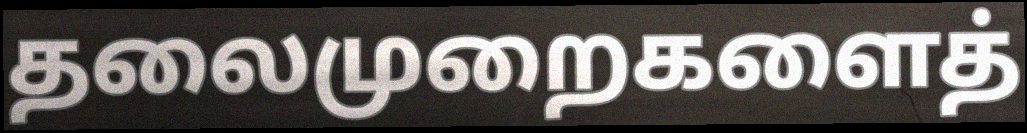
தலைமுறைகளைத்